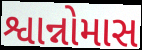
શ્વાન્નોમાસ